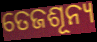
ତେଜଶୂନ୍ୟ